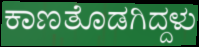
ಕಾಣತೊಡಗಿದ್ದಳು